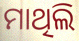
ମାଥିଲି